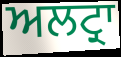
ਅਲਟ੍ਰਾ